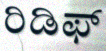
ರಿಡಿಫ್